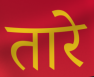
तारे